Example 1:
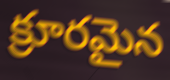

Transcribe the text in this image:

క్రూరమైన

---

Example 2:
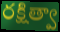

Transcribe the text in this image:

రక్షిత్వా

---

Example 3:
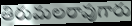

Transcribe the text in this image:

తిరుమలరావుగారు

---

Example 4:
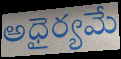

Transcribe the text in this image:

అధైర్యమే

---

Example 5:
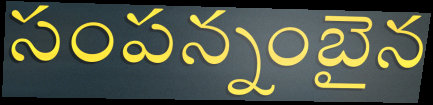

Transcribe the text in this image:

సంపన్నంబైన